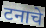
टनाचे